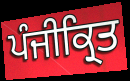
ਪੰਜੀਕ੍ਰਿਤ